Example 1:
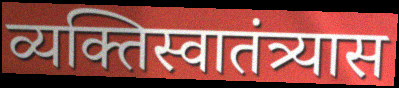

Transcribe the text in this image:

व्यक्तिस्वातंत्र्यास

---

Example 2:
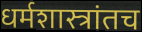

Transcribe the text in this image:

धर्मशास्त्रांतच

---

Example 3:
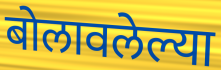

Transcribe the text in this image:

बोलावलेल्या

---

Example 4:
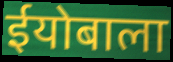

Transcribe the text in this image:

ईयोबाला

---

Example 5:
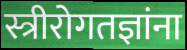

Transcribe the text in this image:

स्त्रीरोगतज्ञांना